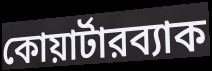
কোয়ার্টারব্যাক